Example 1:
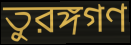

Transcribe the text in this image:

তুরঙ্গগণ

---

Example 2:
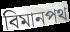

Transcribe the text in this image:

বিমানপথ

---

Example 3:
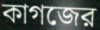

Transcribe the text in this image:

কাগজের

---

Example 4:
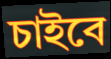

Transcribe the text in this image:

চাইবে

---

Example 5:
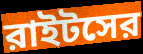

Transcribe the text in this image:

রাইটসের